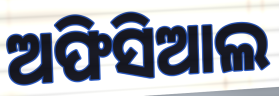
ଅଫିସିଆଲ